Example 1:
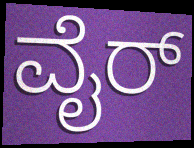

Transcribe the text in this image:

ವೈರ್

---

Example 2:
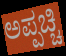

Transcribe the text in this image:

ಅಪ್ಪಚ್ಚಿ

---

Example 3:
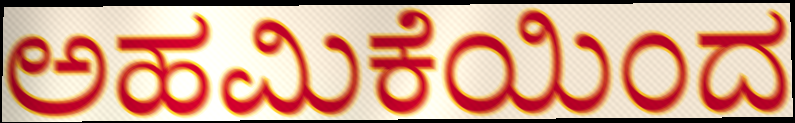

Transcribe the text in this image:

ಅಹಮಿಕೆಯಿಂದ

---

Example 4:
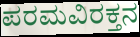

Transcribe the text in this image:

ಪರಮವಿರಕ್ತನ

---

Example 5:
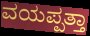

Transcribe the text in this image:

ವಯಪ್ಪತ್ತಾ